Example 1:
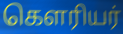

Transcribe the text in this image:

கௌரியர்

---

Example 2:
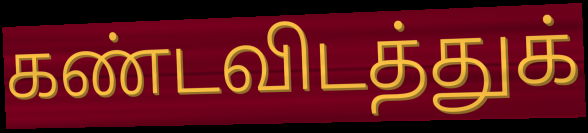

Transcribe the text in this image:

கண்டவிடத்துக்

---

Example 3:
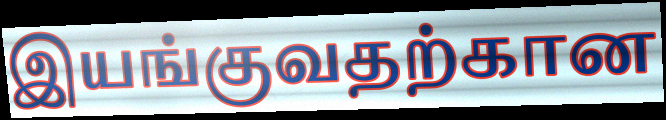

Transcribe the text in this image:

இயங்குவதற்கான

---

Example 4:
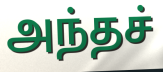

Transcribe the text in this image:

அந்தச்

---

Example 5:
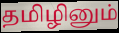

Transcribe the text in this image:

தமிழினும்